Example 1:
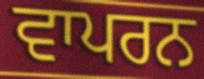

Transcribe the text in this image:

ਵਾਪਰਨ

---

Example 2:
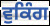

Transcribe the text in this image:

ਵੁਕਿੰਗ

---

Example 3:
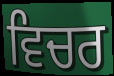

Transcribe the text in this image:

ਵਿਚਰ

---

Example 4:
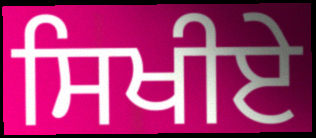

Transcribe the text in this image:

ਸਿਖੀਏ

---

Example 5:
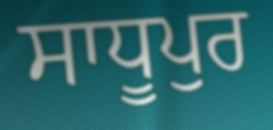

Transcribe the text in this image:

ਸਾਧੂਪੁਰ